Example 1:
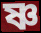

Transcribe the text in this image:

ষ্ণ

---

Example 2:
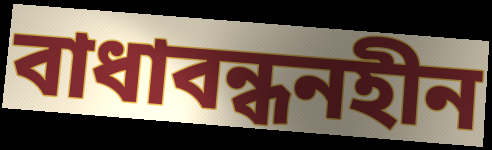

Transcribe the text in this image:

বাধাবন্ধনহীন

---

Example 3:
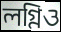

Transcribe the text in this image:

লগ্নিও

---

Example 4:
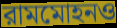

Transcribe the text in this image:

রামমোহনও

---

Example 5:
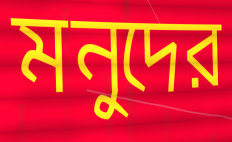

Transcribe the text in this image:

মনুদের